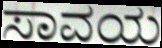
ಸಾವಯ